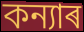
কন্যাৰ